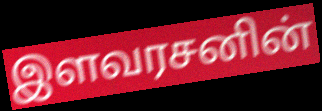
இளவரசனின்